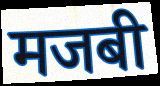
मजबी